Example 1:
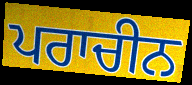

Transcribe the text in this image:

ਪਰਾਚੀਨ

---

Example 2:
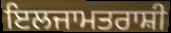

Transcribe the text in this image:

ਇਲਜਾਮਤਰਾਸ਼ੀ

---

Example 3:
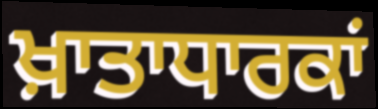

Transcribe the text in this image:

ਖ਼ਾਤਾਧਾਰਕਾਂ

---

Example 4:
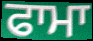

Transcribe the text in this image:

ਫਾਮਾ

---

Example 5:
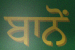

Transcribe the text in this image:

ਬਾਨੋਂ